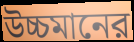
উচ্চমানের